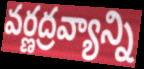
వర్ణద్రవ్యాన్ని